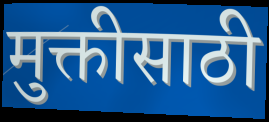
मुक्तीसाठी